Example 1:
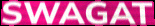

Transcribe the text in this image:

SWAGAT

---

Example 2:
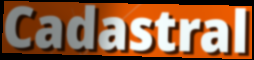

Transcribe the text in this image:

Cadastral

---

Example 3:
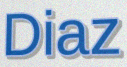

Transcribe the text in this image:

Diaz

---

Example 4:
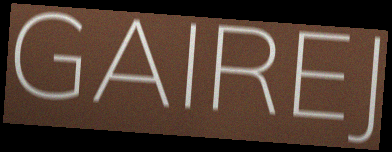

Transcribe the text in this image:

GAIREJ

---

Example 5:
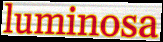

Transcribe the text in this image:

luminosa